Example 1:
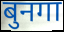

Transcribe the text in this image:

बुनगा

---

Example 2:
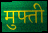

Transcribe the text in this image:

मुफ्ती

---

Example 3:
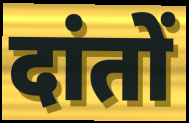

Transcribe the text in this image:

दांतों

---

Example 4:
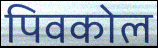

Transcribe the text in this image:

पिवकोल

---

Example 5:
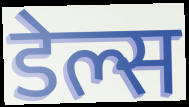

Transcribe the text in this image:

डेल्स